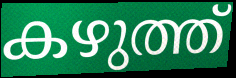
കഴുത്ത്